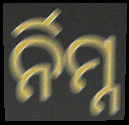
ର୍ନିମ୍ନ